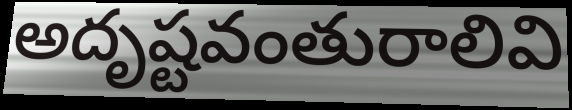
అదృష్టవంతురాలివి